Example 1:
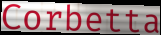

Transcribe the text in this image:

Corbetta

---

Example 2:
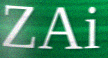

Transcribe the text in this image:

ZAi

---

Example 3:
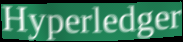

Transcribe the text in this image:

Hyperledger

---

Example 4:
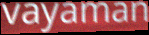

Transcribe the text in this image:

vayaman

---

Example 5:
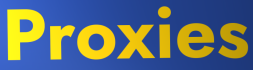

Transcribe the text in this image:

Proxies